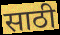
साठी